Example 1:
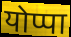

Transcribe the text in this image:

योप्पा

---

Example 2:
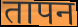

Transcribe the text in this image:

तापन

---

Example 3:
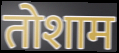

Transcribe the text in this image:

तोशाम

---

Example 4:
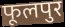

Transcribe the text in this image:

फूलपुर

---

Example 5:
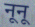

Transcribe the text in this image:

नूनू